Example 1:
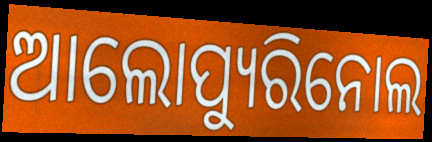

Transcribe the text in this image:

ଆଲୋପ୍ୟୁରିନୋଲ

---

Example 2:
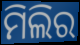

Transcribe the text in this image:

ମିଲିର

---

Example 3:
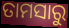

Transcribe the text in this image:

ତାମସାରୁ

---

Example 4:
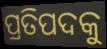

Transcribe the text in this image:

ପ୍ରତିପଦକୁ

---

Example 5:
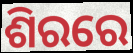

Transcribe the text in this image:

ଶିରରେ